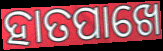
ହାତପାଖେ